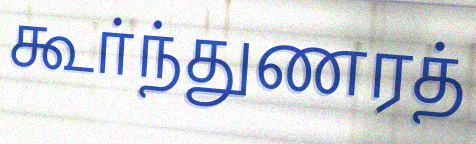
கூர்ந்துணரத்